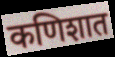
कणिशात